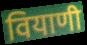
वियाणी